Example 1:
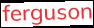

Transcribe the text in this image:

ferguson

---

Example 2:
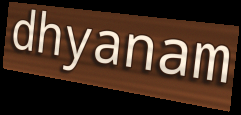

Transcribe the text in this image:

dhyanam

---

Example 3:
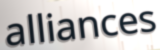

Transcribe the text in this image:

alliances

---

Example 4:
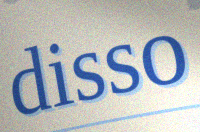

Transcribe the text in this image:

disso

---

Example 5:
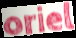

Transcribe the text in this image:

oriel